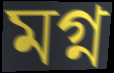
মগ্ন